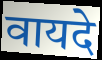
वायदे